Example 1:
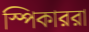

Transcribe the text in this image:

স্পিকাররা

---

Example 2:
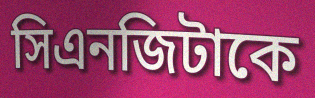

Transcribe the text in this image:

সিএনজিটাকে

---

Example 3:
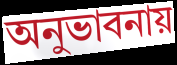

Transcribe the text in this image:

অনুভাবনায়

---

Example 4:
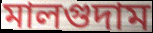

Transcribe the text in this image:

মালগুদাম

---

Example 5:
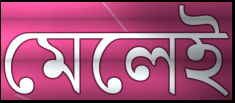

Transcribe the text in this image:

মেলেই